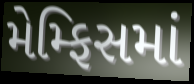
મેમ્ફિસમાં